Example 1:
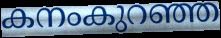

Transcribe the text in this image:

കനംകുറഞ്ഞ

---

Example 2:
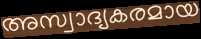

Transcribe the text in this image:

അസ്വാദ്യകരമായ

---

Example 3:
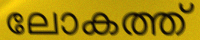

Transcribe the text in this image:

ലോകത്ത്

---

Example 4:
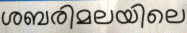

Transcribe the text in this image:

ശബരിമലയിലെ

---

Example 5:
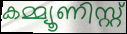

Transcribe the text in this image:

കമ്മ്യൂണിസ്റ്റ്